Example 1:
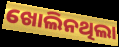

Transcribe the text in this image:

ଖୋଲିନଥିଲା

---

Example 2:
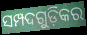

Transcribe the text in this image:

ସମ୍ପଦଗୁଡ଼ିକର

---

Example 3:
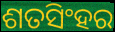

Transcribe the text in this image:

ଶତସିଂହର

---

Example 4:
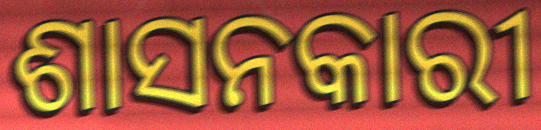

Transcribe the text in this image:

ଶାସନକାରୀ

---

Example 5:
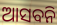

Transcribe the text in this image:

ଆସବନି